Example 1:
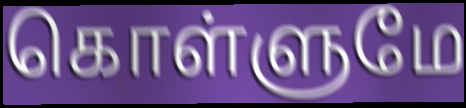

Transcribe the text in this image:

கொள்ளுமே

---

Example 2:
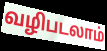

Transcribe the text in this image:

வழிபடலாம்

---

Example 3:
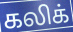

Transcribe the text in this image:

கலிக்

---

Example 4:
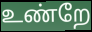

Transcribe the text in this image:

உண்றே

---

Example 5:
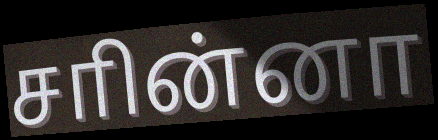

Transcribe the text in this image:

சரின்னா